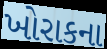
ખોરાકના